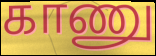
காணு